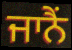
ਜਾਨੈਂ